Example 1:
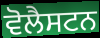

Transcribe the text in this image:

ਵੋਲੈਸਟਨ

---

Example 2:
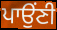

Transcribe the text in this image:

ਪਾਉਂਣੀ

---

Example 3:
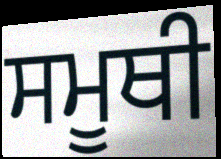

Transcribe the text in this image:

ਸਮੂਥੀ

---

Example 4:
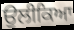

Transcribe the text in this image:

ਉਲੀਕਿਆ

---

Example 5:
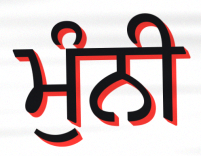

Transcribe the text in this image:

ਮੁੰਨੀ